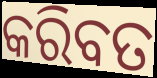
କରିବତ